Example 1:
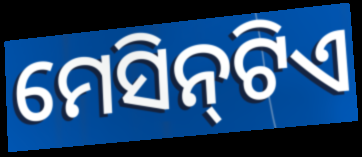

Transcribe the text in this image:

ମେସିନ୍‌ଟିଏ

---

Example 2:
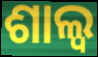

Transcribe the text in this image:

ଶାଲ୍ୱ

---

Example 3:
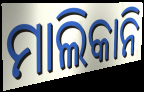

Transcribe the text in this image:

ମାଲିକାନି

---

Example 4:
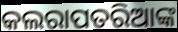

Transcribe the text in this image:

କଲରାପତରିଆଙ୍କ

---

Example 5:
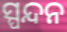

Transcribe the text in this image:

ସ୍ପନ୍ଦନ